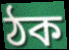
ঠক